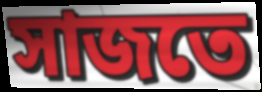
সাজতে